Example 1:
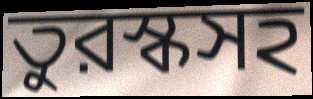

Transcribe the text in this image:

তুরস্কসহ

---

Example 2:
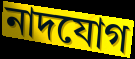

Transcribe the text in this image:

নাদযোগ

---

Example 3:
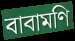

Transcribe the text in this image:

বাবামণি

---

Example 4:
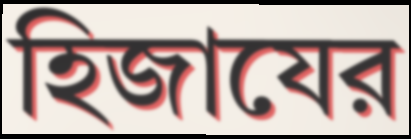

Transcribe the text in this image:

হিজাযের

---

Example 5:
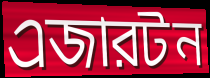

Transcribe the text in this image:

এজারটন